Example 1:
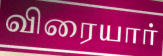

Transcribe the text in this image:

விரையார்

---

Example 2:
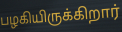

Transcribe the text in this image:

பழகியிருக்கிறார்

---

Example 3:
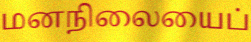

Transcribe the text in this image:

மனநிலையைப்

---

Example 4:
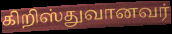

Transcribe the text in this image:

கிறிஸ்துவானவர்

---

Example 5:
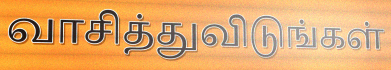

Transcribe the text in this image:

வாசித்துவிடுங்கள்